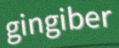
gingiber